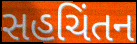
સહચિંતન